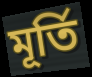
মূর্তি